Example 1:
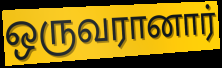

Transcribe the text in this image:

ஒருவரானார்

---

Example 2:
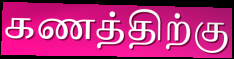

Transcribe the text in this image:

கணத்திற்கு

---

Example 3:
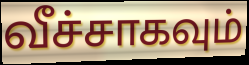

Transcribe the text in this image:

வீச்சாகவும்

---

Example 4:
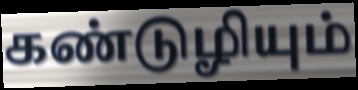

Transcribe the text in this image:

கண்டுழியும்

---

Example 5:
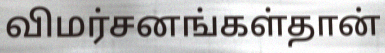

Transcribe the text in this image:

விமர்சனங்கள்தான்